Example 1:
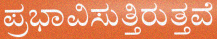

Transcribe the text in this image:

ಪ್ರಭಾವಿಸುತ್ತಿರುತ್ತವೆ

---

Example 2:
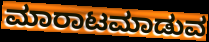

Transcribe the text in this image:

ಮಾರಾಟಮಾಡುವ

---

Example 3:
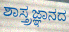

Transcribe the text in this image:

ಶಾಸ್ತ್ರಜ್ಞಾನದ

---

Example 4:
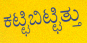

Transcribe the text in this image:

ಕಟ್ಟಿಬಿಟ್ಟಿತ್ತು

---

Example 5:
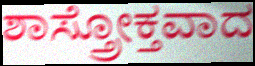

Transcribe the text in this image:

ಶಾಸ್ತ್ರೋಕ್ತವಾದ